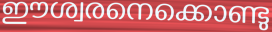
ഈശ്വരനെക്കൊണ്ടു